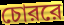
চোররে